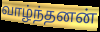
வாழ்ந்தனன்